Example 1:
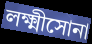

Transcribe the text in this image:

লক্ষ্মীসোনা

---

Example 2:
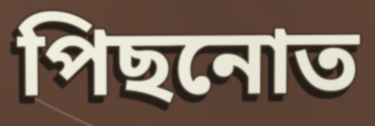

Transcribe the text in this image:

পিছনোত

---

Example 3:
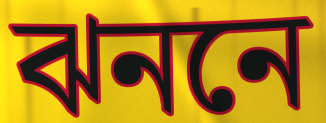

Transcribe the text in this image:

ঝননে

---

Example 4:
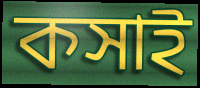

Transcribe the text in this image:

কসাই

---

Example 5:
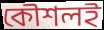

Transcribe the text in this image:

কৌশলই